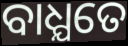
ବାଧ୍ଯତେ